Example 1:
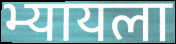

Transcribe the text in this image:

भ्यायला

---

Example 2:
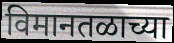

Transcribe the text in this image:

विमानतळाच्या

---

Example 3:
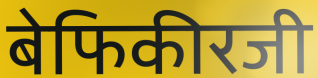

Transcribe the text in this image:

बेफिकीरजी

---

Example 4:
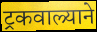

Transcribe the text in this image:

ट्रकवाल्याने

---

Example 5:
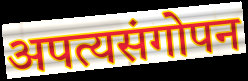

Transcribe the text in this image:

अपत्यसंगोपन